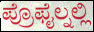
ಪ್ರೊಫೈಲ್ನಲ್ಲಿ